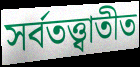
সর্বতত্ত্বাতীত